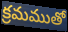
క్రమముతో